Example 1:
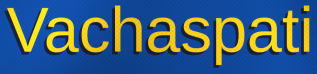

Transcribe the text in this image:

Vachaspati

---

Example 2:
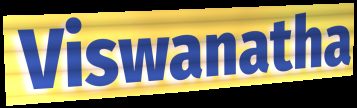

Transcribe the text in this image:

Viswanatha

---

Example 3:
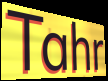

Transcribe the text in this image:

Tahr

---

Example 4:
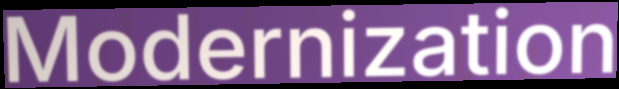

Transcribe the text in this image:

Modernization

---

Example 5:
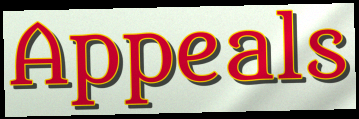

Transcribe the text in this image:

Appeals